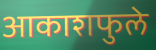
आकाशफुले